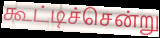
கூட்டிச்சென்று